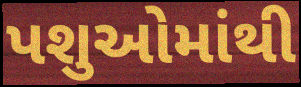
પશુઓમાંથી